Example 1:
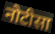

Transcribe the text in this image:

नोटीसा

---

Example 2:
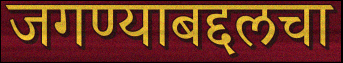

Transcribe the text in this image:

जगण्याबद्दलचा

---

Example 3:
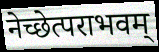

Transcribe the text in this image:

नेच्छेत्पराभवम्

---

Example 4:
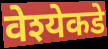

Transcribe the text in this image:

वेश्येकडे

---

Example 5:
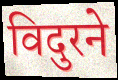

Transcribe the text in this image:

विदुरने